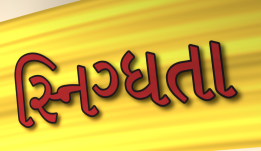
સ્નિગ્ધતા